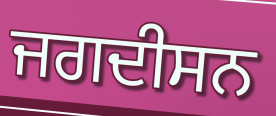
ਜਗਦੀਸਨ